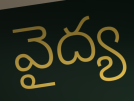
వైద్య